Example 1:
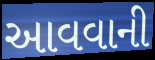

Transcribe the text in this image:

આવવાની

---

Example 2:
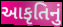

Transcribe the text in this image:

આકૃતિનું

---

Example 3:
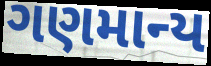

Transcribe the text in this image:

ગણમાન્ય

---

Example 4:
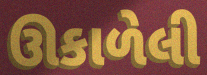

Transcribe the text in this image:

ઊકાળેલી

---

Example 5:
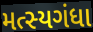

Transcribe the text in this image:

મત્સ્યગંધા